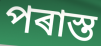
পৰাস্ত